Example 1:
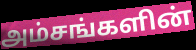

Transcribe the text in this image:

அம்சங்களின்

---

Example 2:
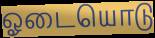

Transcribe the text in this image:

ஓடையொடு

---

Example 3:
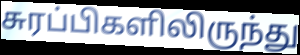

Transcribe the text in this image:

சுரப்பிகளிலிருந்து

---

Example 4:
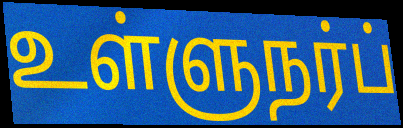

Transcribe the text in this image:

உள்ளுநர்ப்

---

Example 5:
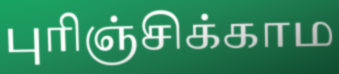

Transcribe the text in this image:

புரிஞ்சிக்காம